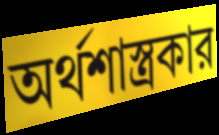
অর্থশাস্ত্রকার